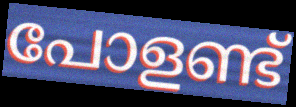
പോളണ്ട്